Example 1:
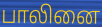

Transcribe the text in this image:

பாலினை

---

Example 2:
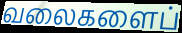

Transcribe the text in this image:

வலைகளைப்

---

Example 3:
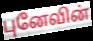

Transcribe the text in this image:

புனேவின்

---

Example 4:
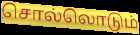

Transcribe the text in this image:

சொல்லொடும்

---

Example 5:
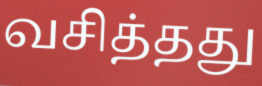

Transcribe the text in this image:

வசித்தது